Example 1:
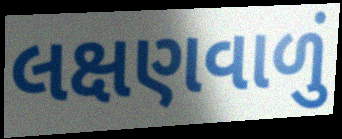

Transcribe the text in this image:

લક્ષણવાળું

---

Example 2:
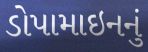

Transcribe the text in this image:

ડોપામાઇનનું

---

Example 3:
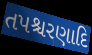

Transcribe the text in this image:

તપશ્ચરણાદિ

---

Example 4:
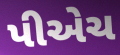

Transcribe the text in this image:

પીએચ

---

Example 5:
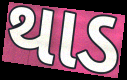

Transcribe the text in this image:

થાડ